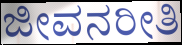
ಜೀವನರೀತಿ